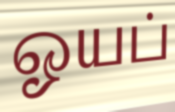
ஓயப்